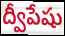
ద్వీపేషు